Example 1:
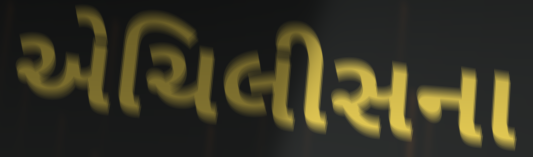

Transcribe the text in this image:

એચિલીસના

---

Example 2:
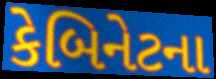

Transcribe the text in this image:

કેબિનેટના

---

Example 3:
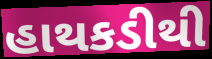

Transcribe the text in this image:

હાથકડીથી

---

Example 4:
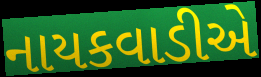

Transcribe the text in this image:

નાયકવાડીએ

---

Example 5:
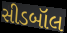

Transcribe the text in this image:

સીડબૉલ